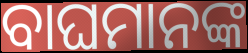
ବାଘମାନଙ୍କ